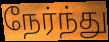
நேர்ந்து